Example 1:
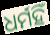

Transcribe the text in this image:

ଧର୍ମହିଁ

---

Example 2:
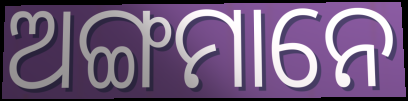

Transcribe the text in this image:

ଅଙ୍ଗମାନେ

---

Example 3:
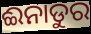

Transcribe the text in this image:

ଈନାଡୁର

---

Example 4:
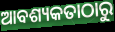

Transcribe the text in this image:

ଆବଶ୍ୟକତାଠାରୁ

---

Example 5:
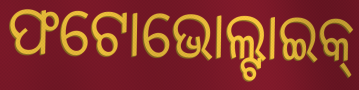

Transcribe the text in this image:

ଫଟୋଭୋଲ୍ଟାଇକ୍